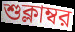
শুক্লাম্বর